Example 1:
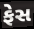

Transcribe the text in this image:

ફેસ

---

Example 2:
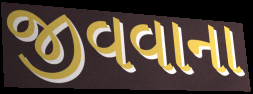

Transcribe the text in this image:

જીવવાના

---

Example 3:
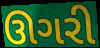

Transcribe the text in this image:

ઊગરી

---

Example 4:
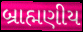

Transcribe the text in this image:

બ્રાહ્મણીય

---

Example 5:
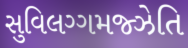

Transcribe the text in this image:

સુવિલગ્ગમજ્ઝેતિ